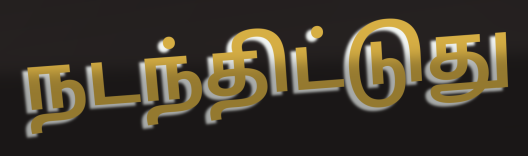
நடந்திட்டுது